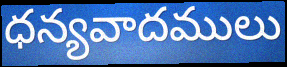
ధన్యవాదములు